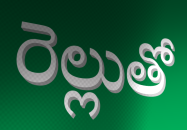
రెల్లుతో